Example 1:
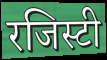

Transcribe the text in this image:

रजिस्टी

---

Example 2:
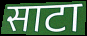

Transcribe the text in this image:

साटा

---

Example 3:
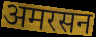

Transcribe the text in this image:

अमरसन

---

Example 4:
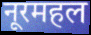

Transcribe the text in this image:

नूरमहल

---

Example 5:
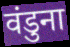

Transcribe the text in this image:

वंडुना